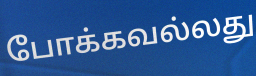
போக்கவல்லது